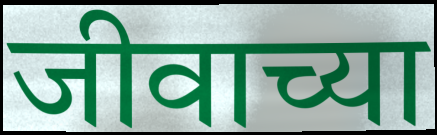
जीवाच्या